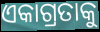
ଏକାଗ୍ରତାକୁ